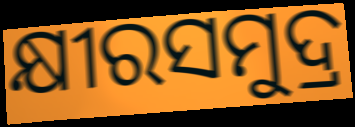
କ୍ଷୀରସମୁଦ୍ର